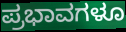
ಪ್ರಭಾವಗಳೂ